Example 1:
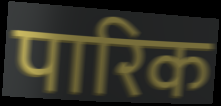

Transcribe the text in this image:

पारिक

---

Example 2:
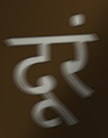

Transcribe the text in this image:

दूरं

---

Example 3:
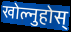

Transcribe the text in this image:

खोल्नुहोस्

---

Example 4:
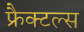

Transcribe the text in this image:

फ्रैक्टल्स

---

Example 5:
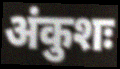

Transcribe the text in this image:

अंकुशः